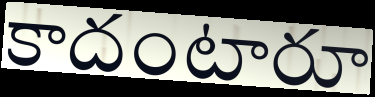
కాదంటారూ